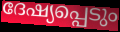
ദേഷ്യപ്പെടും